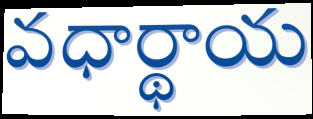
వధార్థాయ